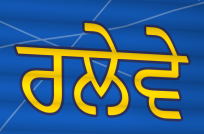
ਰਲੇਵੇ